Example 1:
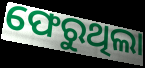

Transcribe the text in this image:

ଫେରୁଥିଲା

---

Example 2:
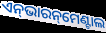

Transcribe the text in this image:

ଏନ୍‌ଭାରନ୍‌ମେଣ୍ଟାଲ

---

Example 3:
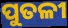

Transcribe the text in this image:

ପୁତଳୀ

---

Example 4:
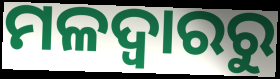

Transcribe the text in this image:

ମଳଦ୍ୱାରରୁ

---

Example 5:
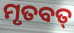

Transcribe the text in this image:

ମୃତବତ୍